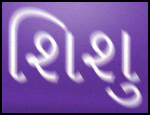
શિશુ